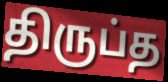
திருப்த